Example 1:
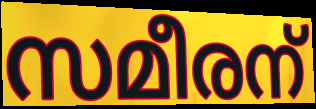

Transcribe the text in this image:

സമീരന്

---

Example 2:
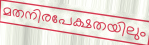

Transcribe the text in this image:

മതനിരപേക്ഷതയിലും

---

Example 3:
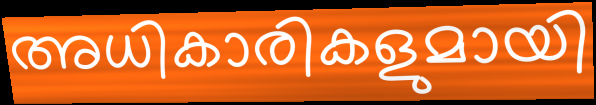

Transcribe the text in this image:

അധികാരികളുമായി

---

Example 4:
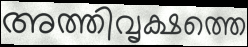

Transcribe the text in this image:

അത്തിവൃക്ഷത്തെ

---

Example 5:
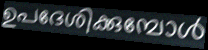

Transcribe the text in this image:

ഉപദേശിക്കുമ്പോൾ